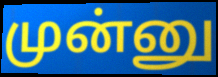
முன்னு